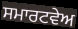
ਸਮਾਰਟਵੇਅ